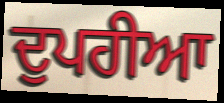
ਦੁਪਹੀਆ